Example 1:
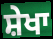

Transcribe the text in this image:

ਸ਼ੇਖਾ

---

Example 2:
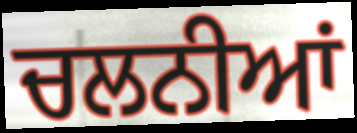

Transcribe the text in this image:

ਚਲਨੀਆਂ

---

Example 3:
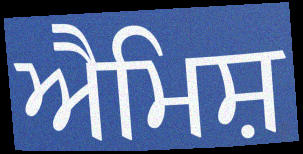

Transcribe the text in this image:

ਐਮਿਸ਼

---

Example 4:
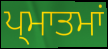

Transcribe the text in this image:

ਪ੍ਮਾਤਮਾਂ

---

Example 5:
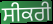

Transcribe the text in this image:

ਸੀਕਰੀ